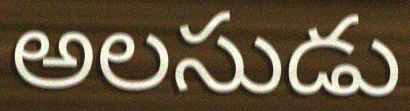
అలసుడు